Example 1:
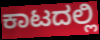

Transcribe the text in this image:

ಕಾಟದಲ್ಲಿ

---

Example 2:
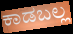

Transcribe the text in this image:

ಕಾಡಬಲ್ಲ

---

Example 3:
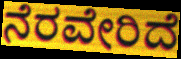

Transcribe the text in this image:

ನೆರವೇರಿದೆ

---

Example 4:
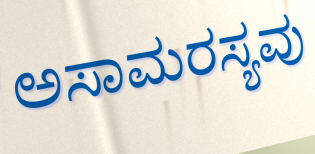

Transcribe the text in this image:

ಅಸಾಮರಸ್ಯವು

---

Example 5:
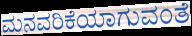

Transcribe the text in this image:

ಮನವರಿಕೆಯಾಗುವಂತೆ